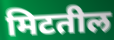
मिटतील